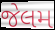
જેલમ